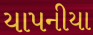
યાપનીયા